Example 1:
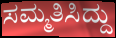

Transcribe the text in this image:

ಸಮ್ಮತಿಸಿದ್ದು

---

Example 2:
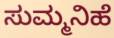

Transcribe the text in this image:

ಸುಮ್ಮನಿಹೆ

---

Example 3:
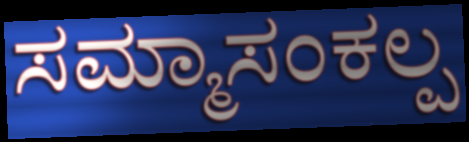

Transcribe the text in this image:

ಸಮ್ಮಾಸಂಕಲ್ಪ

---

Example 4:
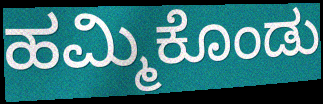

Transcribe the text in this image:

ಹಮ್ಮಿಕೊಂಡು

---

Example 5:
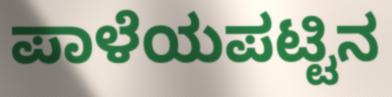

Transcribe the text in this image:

ಪಾಳೆಯಪಟ್ಟಿನ